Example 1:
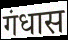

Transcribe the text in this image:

गंधास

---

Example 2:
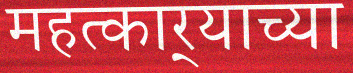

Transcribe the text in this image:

महत्कार्याच्या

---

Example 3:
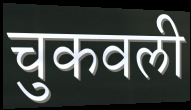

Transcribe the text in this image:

चुकवली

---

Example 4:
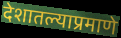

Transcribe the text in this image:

देशातल्याप्रमाणे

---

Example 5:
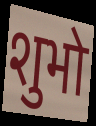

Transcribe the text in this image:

शुभो